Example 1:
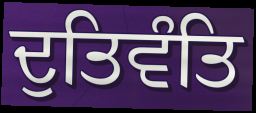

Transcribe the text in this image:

ਦੁਤਿਵੰਤਿ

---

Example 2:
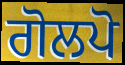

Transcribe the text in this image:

ਗੋਲਪੋ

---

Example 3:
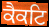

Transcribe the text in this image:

ਕੈਕਟਿ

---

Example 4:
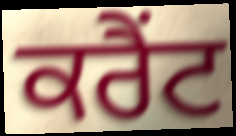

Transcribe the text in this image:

ਕਰੈਂਟ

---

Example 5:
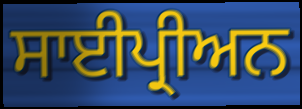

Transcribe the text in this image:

ਸਾਈਪ੍ਰੀਅਨ